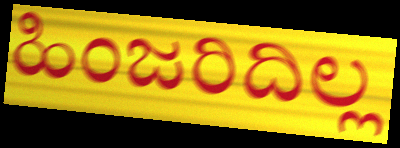
ಹಿಂಜರಿದಿಲ್ಲ